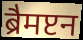
ब्रैमप्टन